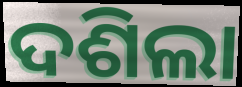
ଦଶିଲା